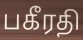
பகீரதி